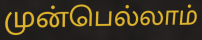
முன்பெல்லாம்